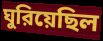
ঘুরিয়েছিল